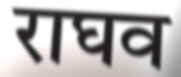
राघव